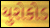
યુરોકોડ